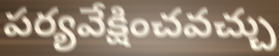
పర్యవేక్షించవచ్చు